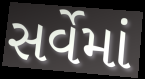
સર્વેમાં